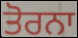
ਤੋਰਨਾ